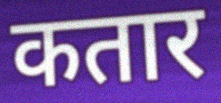
कतार